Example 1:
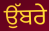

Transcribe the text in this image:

ਉੱਬਰੇ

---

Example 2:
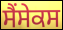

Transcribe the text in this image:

ਸੈਂਸੇਕਸ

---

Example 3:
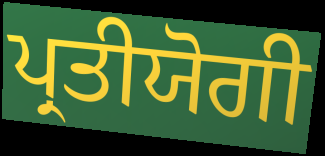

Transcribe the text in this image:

ਪ੍ਰਤੀਯੋਗੀ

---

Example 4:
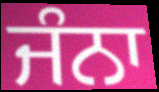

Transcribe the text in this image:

ਜੰਨਾ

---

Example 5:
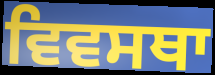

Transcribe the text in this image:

ਵਿਵਸਥਾ